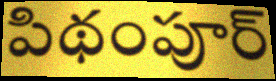
పిథంపూర్